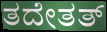
ತದೇತತ್